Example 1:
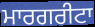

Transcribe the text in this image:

ਮਾਰਗਰੀਟਾ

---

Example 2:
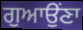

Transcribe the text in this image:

ਗੁਆਉਂਣਾ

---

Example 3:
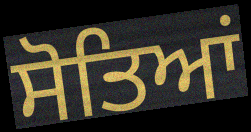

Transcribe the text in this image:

ਸੋਤਿਆਂ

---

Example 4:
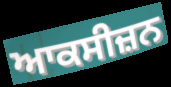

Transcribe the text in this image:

ਆਕਸੀਜ਼ਨ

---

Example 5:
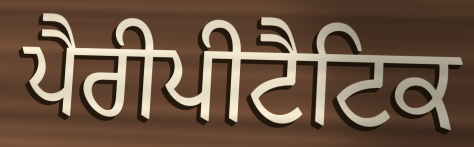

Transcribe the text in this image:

ਪੈਰੀਪੀਟੈਟਿਕ